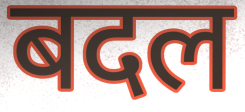
बदल